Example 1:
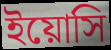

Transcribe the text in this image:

ইয়োসি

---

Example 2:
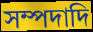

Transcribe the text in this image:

সম্পদাদি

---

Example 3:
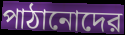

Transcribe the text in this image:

পাঠানোদের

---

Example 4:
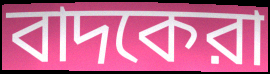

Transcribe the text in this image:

বাদকেরা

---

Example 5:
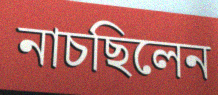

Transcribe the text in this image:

নাচছিলেন